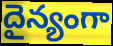
దైన్యంగా